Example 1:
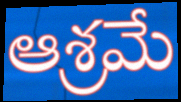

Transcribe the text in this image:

ఆశ్రమే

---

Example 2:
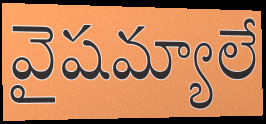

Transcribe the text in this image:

వైషమ్యాలే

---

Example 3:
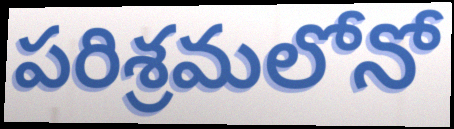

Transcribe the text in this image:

పరిశ్రమలోనో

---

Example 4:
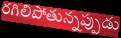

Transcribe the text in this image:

రగిలిపోతున్నప్పుడు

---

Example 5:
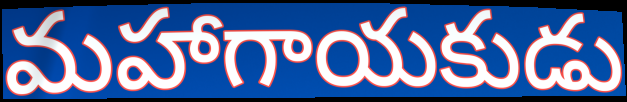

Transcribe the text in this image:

మహాగాయకుడు